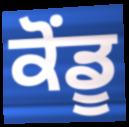
ਕੋਂਡੂ